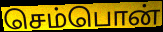
செம்பொன்